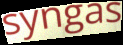
syngas